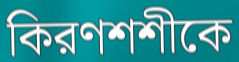
কিরণশশীকে